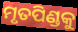
ମୃତପିଣ୍ଡକୁ